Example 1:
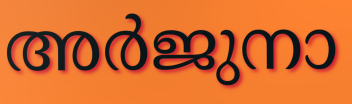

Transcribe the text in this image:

അർജുനാ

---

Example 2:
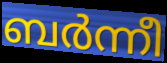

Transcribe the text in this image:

ബർന്നീ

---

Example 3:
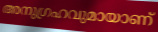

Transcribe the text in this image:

അനുഗ്രഹവുമായാണ്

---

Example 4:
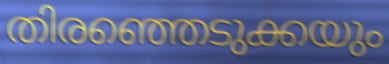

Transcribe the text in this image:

തിരഞ്ഞെടുക്കയും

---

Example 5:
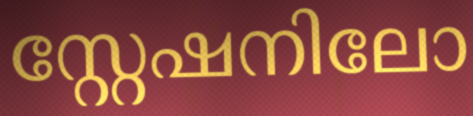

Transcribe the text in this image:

സ്റ്റേഷനിലോ